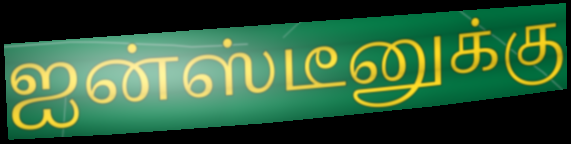
ஐன்ஸ்டீனுக்கு